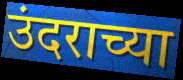
उंदराच्या